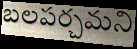
బలపర్చమని